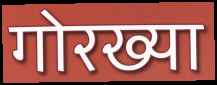
गोरख्या